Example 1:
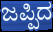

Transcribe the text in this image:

ಜಪ್ಪಿದ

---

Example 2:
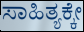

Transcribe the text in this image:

ಸಾಹಿತ್ಯಕ್ಕೇ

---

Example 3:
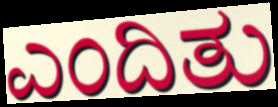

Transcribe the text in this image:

ಎಂದಿತು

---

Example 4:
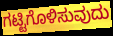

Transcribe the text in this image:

ಗಟ್ಟಿಗೊಳಿಸುವುದು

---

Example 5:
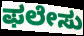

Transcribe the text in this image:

ಫಲೇಸು